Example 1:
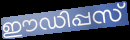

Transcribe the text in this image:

ഈഡിപ്പസ്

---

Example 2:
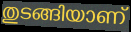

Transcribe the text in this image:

തുടങ്ങിയാണ്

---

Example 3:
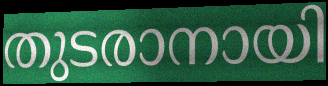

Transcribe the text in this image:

തുടരാനായി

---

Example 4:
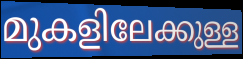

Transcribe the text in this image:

മുകളിലേക്കുള്ള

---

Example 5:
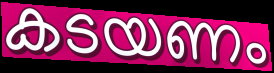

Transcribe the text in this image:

കടയണം